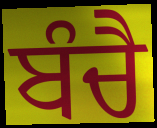
ਬੰਚੈ